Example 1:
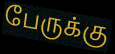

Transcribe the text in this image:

பேருக்கு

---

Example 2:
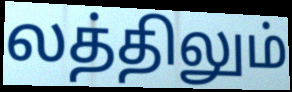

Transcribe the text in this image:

லத்திலும்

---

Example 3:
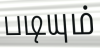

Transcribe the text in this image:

படியும்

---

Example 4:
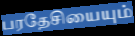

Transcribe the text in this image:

பரதேசியையும்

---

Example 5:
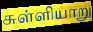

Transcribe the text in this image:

சுள்ளியாறு